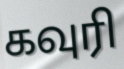
கவுரி